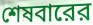
শেষবারের